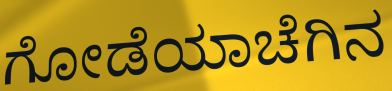
ಗೋಡೆಯಾಚೆಗಿನ